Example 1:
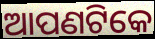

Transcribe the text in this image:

ଆପଣଟିକେ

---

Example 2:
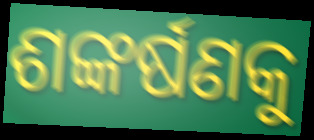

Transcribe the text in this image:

ଶଙ୍କର୍ଷଣକୁ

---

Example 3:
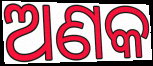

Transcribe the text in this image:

ଅଣକ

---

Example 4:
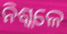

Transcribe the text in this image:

ନିଶ୍କଳେ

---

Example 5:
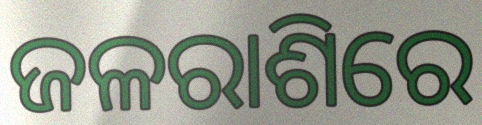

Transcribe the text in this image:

ଜଳରାଶିରେ